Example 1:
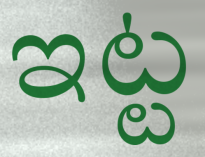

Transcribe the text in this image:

ఇట్ట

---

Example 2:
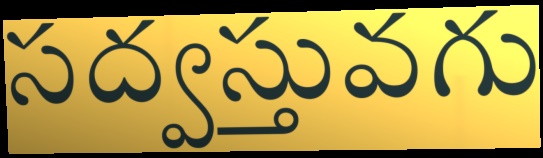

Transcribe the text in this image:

సద్వస్తువగు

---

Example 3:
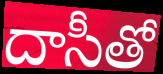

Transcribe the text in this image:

దాసీతో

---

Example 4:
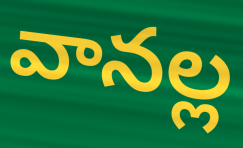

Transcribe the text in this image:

వానల్ల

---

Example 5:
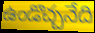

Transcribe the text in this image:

ఉండొచ్చనేది